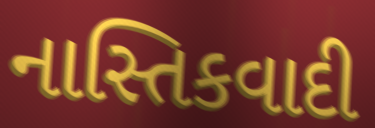
નાસ્તિકવાદી